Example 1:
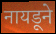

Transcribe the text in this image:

नायडूने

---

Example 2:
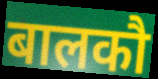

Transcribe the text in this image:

बालकौ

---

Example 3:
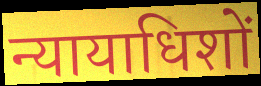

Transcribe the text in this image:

न्यायाधिशों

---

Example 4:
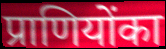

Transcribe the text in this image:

प्राणियोंका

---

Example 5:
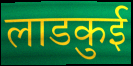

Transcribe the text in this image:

लाडकुई